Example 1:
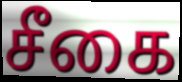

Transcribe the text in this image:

சீகை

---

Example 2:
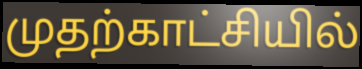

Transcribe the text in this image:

முதற்காட்சியில்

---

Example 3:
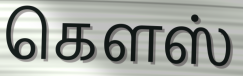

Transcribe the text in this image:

கௌஸ்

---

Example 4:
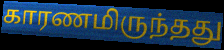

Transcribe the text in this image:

காரணமிருந்தது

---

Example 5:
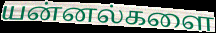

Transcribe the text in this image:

யன்னல்களை